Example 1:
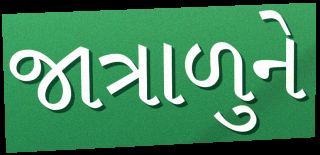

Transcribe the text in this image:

જાત્રાળુને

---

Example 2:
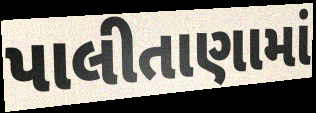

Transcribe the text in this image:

પાલીતાણામાં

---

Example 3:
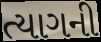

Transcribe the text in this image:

ત્‍યાગની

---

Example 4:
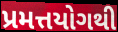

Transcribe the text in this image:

પ્રમત્તયોગથી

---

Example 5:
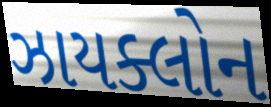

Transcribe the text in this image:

ઝાયક્લોન